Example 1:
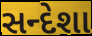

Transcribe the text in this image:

સન્દેશા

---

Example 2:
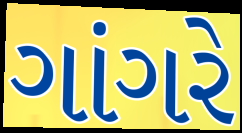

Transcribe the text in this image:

ગાંગરે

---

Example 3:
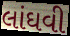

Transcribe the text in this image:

લાંઘવી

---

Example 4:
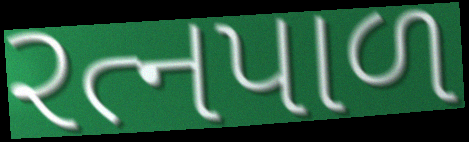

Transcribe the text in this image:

રત્નપાળ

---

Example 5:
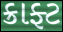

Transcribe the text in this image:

ક્રાફ્ટ